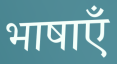
भाषाएँ